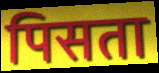
पिसता